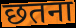
छतना